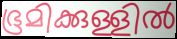
ഭൂമിക്കുള്ളിൽ